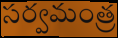
సర్వమంత్ర